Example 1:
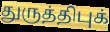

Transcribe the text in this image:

துருத்திபுக்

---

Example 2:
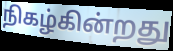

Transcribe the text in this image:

நிகழ்கின்றது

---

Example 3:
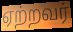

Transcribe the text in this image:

ஏற்றவர்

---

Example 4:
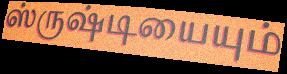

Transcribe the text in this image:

ஸ்ருஷ்டியையும்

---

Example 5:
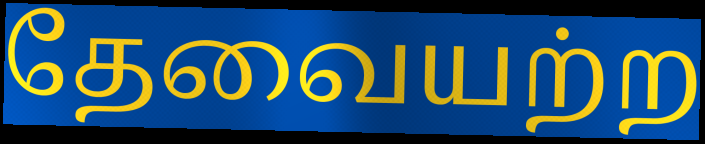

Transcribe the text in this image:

தேவையற்ற